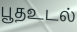
பூதஉடல்